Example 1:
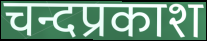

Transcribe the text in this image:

चन्दप्रकाश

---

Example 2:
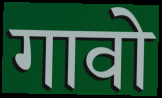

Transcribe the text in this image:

गावो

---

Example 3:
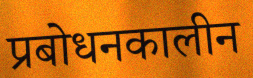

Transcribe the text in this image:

प्रबोधनकालीन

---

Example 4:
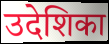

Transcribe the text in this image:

उदेशिका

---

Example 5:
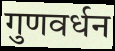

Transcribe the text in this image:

गुणवर्धन